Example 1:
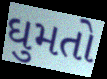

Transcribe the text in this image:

ઘુમતો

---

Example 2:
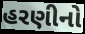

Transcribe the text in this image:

હરણીનો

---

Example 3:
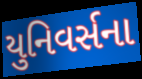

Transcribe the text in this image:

યુનિવર્સના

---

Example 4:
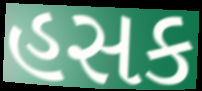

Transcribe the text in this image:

હસક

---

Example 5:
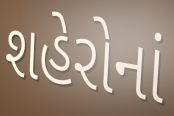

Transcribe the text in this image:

શહેરોનાં